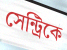
সেন্ট্রিকে